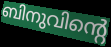
ബിനുവിന്റെ